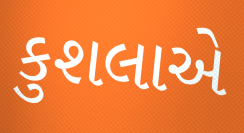
કુશલાએ